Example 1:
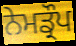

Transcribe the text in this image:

ਨੇਮਡ੍ਰੌਪ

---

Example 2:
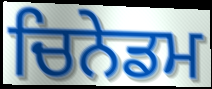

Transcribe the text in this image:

ਚਿਨੇਡਮ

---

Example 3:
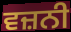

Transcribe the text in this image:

ਵਜ਼ਨੀ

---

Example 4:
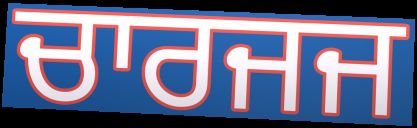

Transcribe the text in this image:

ਚਾਰਜਜ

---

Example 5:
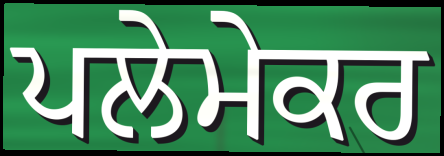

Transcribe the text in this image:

ਪਲੇਮੇਕਰ